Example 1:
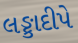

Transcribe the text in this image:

લઙ્કાદીપે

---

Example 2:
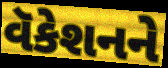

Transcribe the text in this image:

વૅકેશનને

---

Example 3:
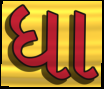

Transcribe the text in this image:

ધા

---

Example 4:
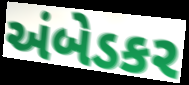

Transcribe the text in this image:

અંબેડકર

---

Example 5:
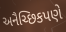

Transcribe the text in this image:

અનૈચ્છિકપણે